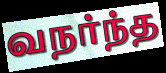
வநர்ந்த